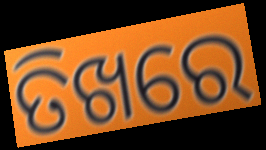
ତିଖରେ